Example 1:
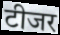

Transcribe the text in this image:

टीजर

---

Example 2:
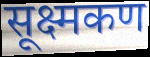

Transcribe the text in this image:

सूक्ष्मकण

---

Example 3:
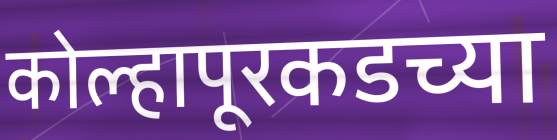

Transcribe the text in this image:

कोल्हापूरकडच्या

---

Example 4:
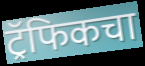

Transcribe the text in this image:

ट्रॅफिकचा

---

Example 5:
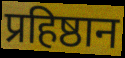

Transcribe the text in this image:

प्रहिष्ठान